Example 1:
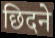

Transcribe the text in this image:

छिदने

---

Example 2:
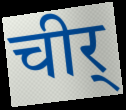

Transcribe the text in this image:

चीर्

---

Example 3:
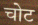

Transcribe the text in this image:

चोट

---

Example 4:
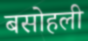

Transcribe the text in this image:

बसोहली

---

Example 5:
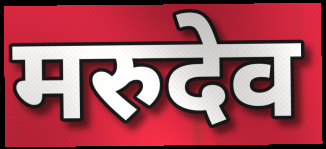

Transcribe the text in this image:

मरुदेव